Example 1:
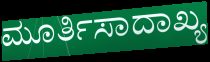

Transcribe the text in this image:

ಮೂರ್ತಿಸಾದಾಖ್ಯ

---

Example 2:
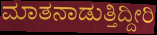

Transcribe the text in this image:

ಮಾತನಾಡುತ್ತಿದ್ದೀರಿ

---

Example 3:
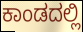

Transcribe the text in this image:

ಕಾಂಡದಲ್ಲಿ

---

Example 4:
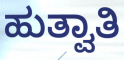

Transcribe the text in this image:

ಹುತ್ವಾತಿ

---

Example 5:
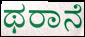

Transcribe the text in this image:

ಥರಾನೆ